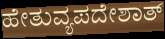
ಹೇತುವ್ಯಪದೇಶಾತ್